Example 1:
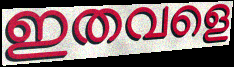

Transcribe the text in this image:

ഇതവളെ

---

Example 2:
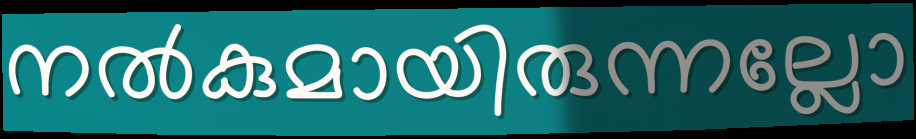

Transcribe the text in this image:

നൽകുമായിരുന്നല്ലോ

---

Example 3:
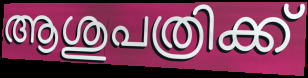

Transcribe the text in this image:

ആശുപത്രിക്ക്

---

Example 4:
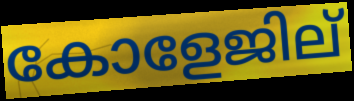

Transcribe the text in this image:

കോളേജില്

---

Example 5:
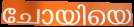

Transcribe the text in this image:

ചോയിയെ